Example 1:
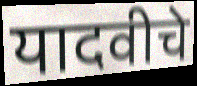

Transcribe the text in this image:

यादवीचे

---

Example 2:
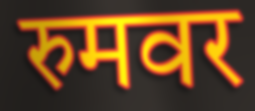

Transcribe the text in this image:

रुमवर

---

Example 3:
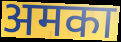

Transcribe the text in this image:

अमका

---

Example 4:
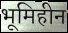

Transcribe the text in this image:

भूमिहीन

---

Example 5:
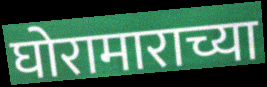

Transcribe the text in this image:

घोरामाराच्या